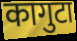
कागुटा